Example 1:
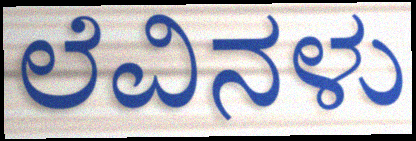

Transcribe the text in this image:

ಲೆವಿನಳು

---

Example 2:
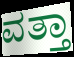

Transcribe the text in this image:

ವತ್ತಾ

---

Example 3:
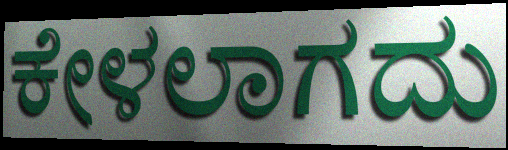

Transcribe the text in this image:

ಕೇಳಲಾಗದು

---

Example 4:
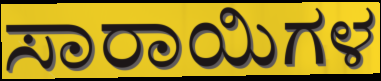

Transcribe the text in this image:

ಸಾರಾಯಿಗಳ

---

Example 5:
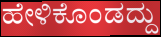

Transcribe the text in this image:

ಹೇಳಿಕೊಂಡದ್ದು